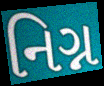
નિગ્ન